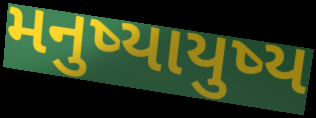
મનુષ્યાયુષ્ય